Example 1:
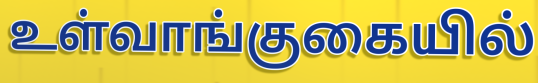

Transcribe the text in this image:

உள்வாங்குகையில்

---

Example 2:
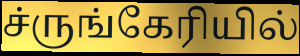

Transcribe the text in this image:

ச்ருங்கேரியில்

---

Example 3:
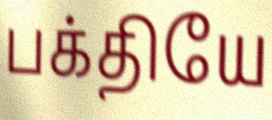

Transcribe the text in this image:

பக்தியே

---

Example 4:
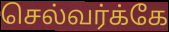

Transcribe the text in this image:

செல்வர்க்கே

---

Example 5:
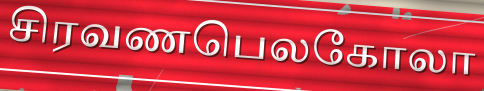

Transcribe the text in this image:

சிரவணபெலகோலா